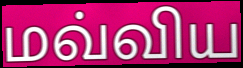
மவ்விய